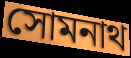
সোমনাথ